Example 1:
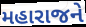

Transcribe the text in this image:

મહારાજને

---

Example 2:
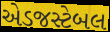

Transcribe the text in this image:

એડજસ્ટેબલ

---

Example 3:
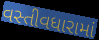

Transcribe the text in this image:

વસ્તીવધારામાં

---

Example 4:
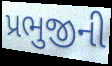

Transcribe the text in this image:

પ્રભુજીની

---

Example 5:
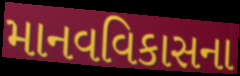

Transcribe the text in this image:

માનવવિકાસના